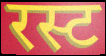
रस्ट